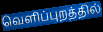
வெளிப்புறத்தில்